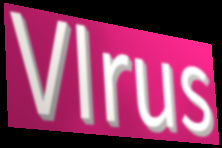
VIrus